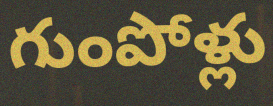
గుంపోళ్లు